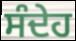
ਸੰਦੇਹ